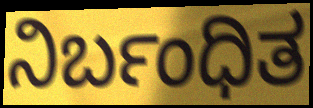
ನಿರ್ಬಂಧಿತ